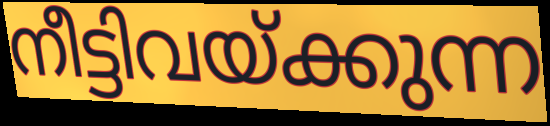
നീട്ടിവയ്ക്കുന്ന